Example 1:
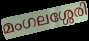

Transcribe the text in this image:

മംഗലശ്ശേരി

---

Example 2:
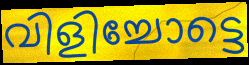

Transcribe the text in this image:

വിളിച്ചോട്ടെ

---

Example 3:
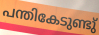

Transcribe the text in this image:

പന്തികേടുണ്ടു്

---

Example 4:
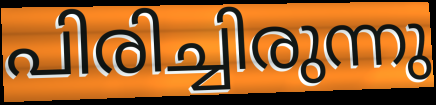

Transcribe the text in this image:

പിരിച്ചിരുന്നു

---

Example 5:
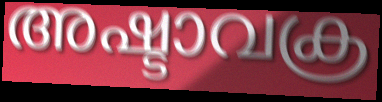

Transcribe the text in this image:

അഷ്ടാവക്ര